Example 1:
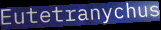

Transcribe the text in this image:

Eutetranychus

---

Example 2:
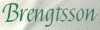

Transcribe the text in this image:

Brengtsson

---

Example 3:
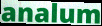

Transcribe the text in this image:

analum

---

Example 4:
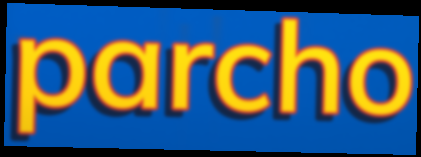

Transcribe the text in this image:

parcho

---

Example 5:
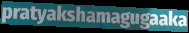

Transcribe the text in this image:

pratyakshamagugaaka